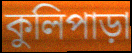
কুলিপাড়া